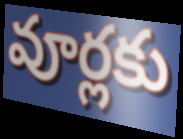
వూర్లకు